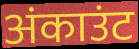
अंकाउंट